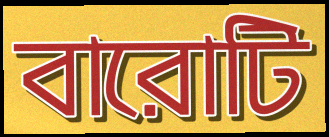
বারোটি